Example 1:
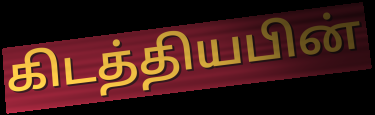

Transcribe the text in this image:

கிடத்தியபின்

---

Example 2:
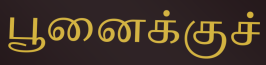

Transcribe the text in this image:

பூனைக்குச்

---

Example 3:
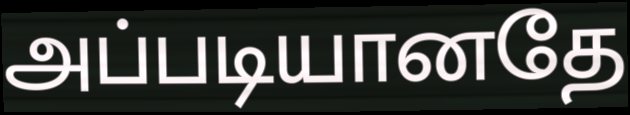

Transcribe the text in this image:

அப்படியானதே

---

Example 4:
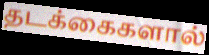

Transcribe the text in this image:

தடக்கைகளால்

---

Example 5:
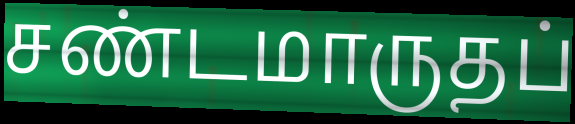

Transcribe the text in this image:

சண்டமாருதப்